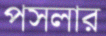
পসলার